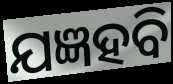
ଯଜ୍ଞହବି